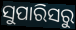
ସୁପାରିସରୁ